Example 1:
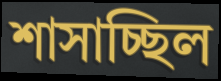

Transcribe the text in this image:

শাসাচ্ছিল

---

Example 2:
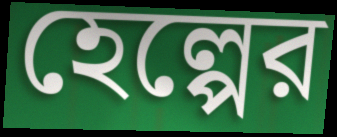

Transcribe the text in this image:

হেল্পের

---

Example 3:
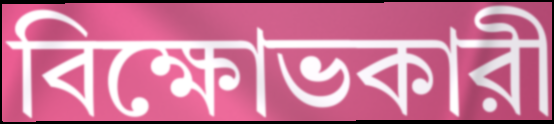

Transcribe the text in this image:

বিক্ষোভকারী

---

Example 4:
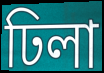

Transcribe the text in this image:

ঢিলা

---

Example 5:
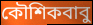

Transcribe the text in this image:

কৌশিকবাবু